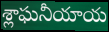
శ్లాఘనీయాయ